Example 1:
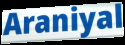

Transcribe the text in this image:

Araniyal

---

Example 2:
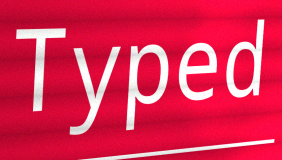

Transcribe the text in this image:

Typed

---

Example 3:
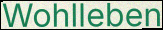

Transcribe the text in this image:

Wohlleben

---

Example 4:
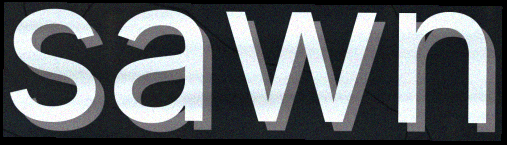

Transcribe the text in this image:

sawn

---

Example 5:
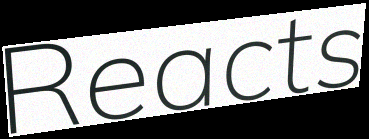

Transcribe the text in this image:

Reacts